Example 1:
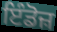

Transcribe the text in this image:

ਇੰਡੋਜ਼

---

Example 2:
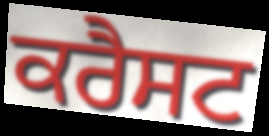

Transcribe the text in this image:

ਕਰੈਸਟ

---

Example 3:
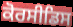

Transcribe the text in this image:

ਕੋਰਸੀਡਿਸ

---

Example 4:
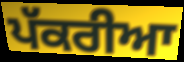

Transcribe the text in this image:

ਪੱਕਰੀਆ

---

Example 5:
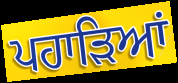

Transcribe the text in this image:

ਪਹਾੜਿਆਂ